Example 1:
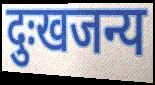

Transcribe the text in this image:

दुःखजन्य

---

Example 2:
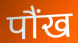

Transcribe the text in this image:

पौंख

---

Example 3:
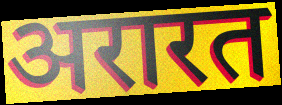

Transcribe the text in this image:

अरारत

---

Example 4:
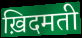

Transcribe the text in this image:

ख़िदमती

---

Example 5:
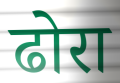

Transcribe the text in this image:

ढोरा